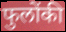
फुलोंकी